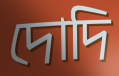
দোদি